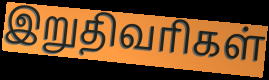
இறுதிவரிகள்